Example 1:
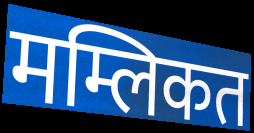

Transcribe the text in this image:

मम्लिकत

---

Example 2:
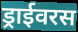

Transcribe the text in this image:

ड्राईवरस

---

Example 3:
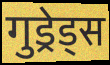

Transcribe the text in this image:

गुड्रेड्स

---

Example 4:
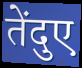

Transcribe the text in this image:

तेंदुए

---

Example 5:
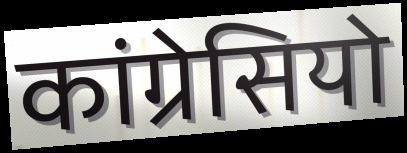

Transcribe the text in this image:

कांग्रेसियो